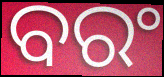
ବରଂ